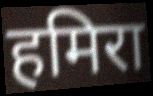
हमिरा